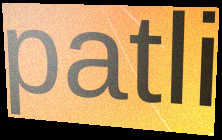
patli